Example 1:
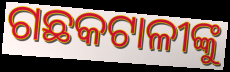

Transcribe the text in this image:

ଗଛକଟାଳୀଙ୍କୁ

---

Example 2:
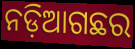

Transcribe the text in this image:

ନଡ଼ିଆଗଛର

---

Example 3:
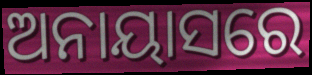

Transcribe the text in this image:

ଅନାୟାସରେ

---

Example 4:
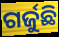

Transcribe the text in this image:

ଗର୍ଜୁଛି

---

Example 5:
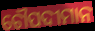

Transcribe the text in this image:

ଚୌପଦୀମାନ